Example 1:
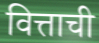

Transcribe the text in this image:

वित्ताची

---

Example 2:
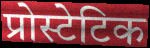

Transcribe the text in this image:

प्रोस्टेटिक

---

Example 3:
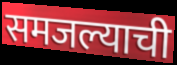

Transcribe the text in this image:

समजल्याची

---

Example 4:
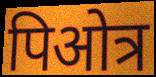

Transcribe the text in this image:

पिओत्र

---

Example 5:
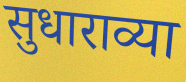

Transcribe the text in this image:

सुधाराव्या